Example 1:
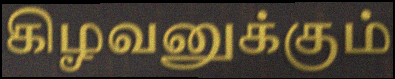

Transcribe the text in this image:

கிழவனுக்கும்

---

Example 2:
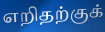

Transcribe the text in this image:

எறிதற்குக்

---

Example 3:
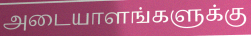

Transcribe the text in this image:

அடையாளங்களுக்கு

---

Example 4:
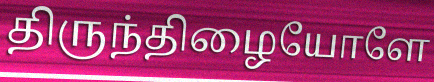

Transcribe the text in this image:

திருந்திழையோளே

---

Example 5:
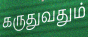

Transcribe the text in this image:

கருதுவதும்